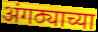
अंगठ्याच्या